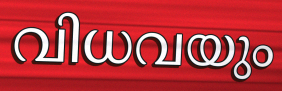
വിധവയും